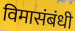
विमासंबंधी